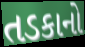
તડકાનો